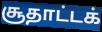
சூதாட்டக்